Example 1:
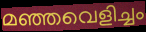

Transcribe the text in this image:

മഞ്ഞവെളിച്ചം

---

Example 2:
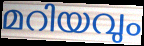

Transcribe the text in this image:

മറിയവും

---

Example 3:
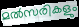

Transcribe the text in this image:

മൽസരികളും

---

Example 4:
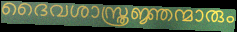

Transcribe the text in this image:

ദൈവശാസ്ത്രജ്ഞന്മാരും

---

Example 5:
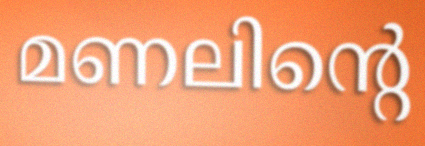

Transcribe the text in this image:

മണലിന്റെ